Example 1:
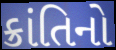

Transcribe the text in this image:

ક્રાંતિનો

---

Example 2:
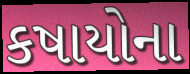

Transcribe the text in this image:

કષાયોના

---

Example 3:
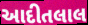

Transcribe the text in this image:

આદીતલાલ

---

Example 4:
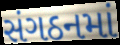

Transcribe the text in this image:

સંગઠનમાં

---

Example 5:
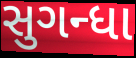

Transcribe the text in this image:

સુગન્ધા